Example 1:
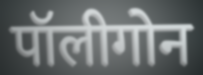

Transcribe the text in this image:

पॉलीगोन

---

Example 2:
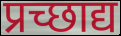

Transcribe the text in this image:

प्रच्छाद्य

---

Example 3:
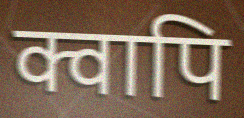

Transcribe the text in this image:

क्वापि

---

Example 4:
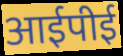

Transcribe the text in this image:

आईपीई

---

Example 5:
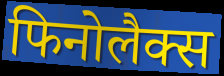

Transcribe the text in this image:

फिनोलैक्स